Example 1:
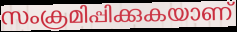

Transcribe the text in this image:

സംക്രമിപ്പിക്കുകയാണ്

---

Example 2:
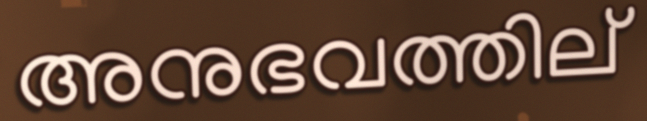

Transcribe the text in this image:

അനുഭവത്തില്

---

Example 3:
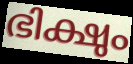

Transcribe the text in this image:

ഭിക്ഷും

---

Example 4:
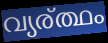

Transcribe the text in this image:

വ്യര്ത്ഥം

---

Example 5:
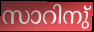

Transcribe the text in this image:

സാറിനു്